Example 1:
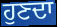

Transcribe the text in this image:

ਹੁਣਦਾ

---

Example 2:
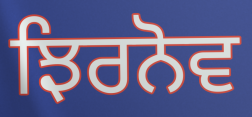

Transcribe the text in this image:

ਝਿਰਨੋਵ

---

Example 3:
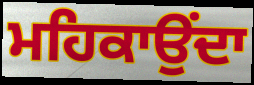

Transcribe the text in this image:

ਮਹਿਕਾਉਂਦਾ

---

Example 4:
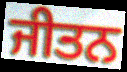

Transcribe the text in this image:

ਜੀਤਨ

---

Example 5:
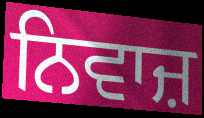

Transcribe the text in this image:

ਨਿਵਾਜ਼